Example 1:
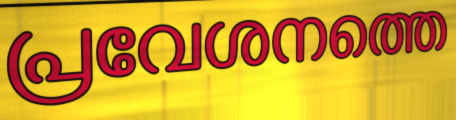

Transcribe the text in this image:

പ്രവേശനത്തെ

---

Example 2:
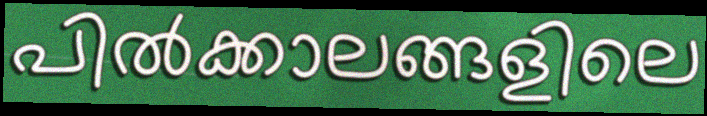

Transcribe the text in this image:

പിൽക്കാലങ്ങളിലെ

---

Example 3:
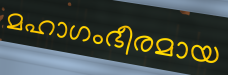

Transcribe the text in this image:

മഹാഗംഭീരമായ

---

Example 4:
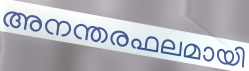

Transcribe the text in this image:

അനന്തരഫലമായി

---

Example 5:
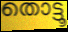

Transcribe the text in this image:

തൊട്ടൂ